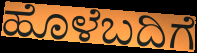
ಹೊಳೆಬದಿಗೆ